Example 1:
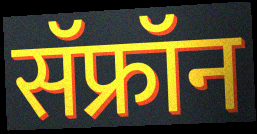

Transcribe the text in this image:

सॅफ्रॉन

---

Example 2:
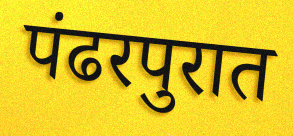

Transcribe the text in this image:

पंढरपुरात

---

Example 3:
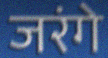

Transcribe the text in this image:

जरंगे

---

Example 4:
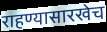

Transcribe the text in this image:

राहण्यासारखेच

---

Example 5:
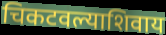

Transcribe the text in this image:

चिकटवल्याशिवाय